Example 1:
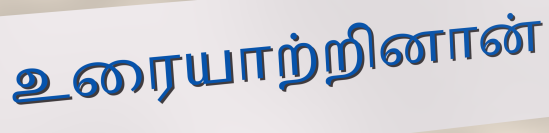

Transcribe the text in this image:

உரையாற்றினான்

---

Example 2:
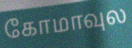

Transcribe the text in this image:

கோமாவுல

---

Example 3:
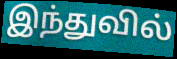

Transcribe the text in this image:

இந்துவில்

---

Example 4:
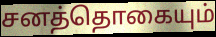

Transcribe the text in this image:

சனத்தொகையும்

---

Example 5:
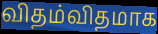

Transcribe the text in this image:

விதம்விதமாக